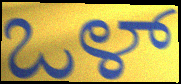
ಒಳ್